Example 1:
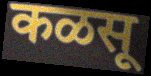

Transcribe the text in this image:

कळसू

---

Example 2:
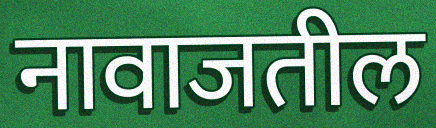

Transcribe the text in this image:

नावाजतील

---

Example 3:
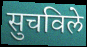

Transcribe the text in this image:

सुचविले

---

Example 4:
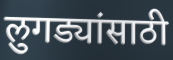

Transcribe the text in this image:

लुगड्यांसाठी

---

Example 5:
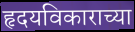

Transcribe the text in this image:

हृदयविकाराच्या